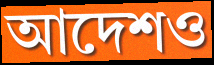
আদেশও